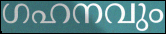
ഗഹനവും